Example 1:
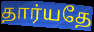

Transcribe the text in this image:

தார்யதே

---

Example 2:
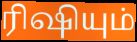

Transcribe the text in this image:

ரிஷியும்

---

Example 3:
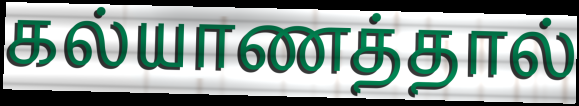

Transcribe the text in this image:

கல்யாணத்தால்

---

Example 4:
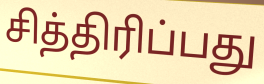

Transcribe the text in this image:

சித்திரிப்பது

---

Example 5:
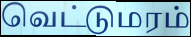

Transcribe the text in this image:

வெட்டுமரம்